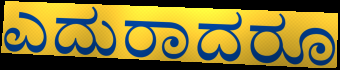
ಎದುರಾದರೂ